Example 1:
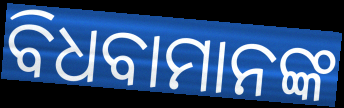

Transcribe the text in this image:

ବିଧବାମାନଙ୍କ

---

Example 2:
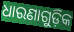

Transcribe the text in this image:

ଧାରଣାଗୁଡ଼ିକ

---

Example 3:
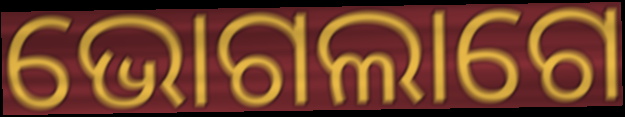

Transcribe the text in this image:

ଭୋଗଲାଗେ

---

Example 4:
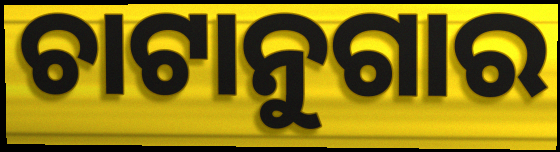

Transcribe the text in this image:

ଚାଟାନୁଗାର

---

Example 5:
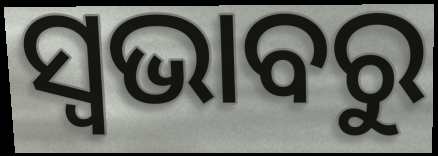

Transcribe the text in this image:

ସ୍ଵଭାବରୁ